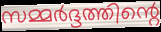
സമ്മർദ്ദത്തിന്റെ